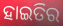
ହାଇତିର